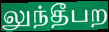
லுந்தீபற